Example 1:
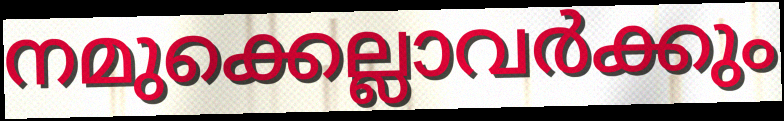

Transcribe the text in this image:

നമുക്കെല്ലാവർക്കും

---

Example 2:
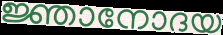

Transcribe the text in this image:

ജ്ഞാനോദയ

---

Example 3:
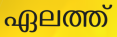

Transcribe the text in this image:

ഏലത്ത്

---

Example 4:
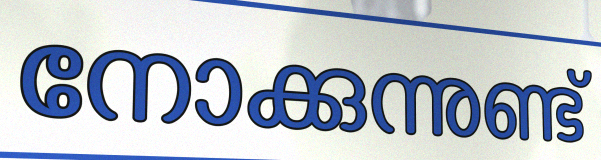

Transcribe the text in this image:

നോക്കുന്നുണ്ട്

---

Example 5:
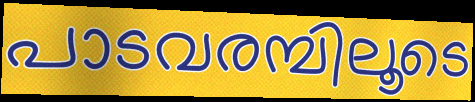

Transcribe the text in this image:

പാടവരമ്പിലൂടെ